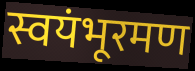
स्वयंभूरमण